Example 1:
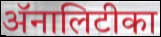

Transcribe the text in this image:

ॲनालिटीका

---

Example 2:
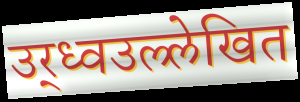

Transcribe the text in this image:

उर्ध्वउल्लेखित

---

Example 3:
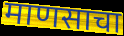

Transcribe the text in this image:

माणसाचा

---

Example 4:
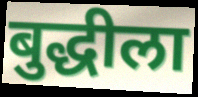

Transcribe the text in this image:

बुद्धीला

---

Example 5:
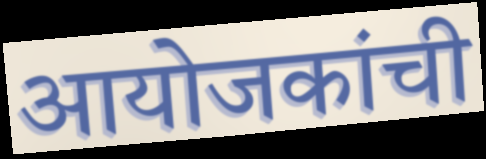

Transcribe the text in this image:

आयोजकांची